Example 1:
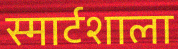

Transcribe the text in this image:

स्मार्टशाला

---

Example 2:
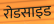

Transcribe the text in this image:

रोडसाइड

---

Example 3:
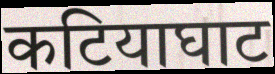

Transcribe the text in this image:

कटियाघाट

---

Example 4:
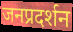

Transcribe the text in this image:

जनप्रदर्शन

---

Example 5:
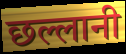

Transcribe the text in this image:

छल्लानी